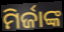
ମିର୍ଜାଙ୍କ